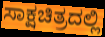
ಸಾಕ್ಷಚಿತ್ರದಲ್ಲಿ